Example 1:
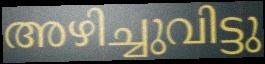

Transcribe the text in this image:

അഴിച്ചുവിട്ടു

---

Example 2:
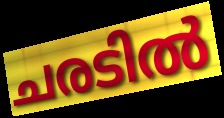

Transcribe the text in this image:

ചരടിൽ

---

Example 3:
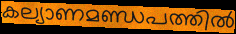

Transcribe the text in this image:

കല്യാണമണ്ഡപത്തിൽ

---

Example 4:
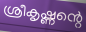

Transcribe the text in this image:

ശ്രീകൃഷ്ണന്റെ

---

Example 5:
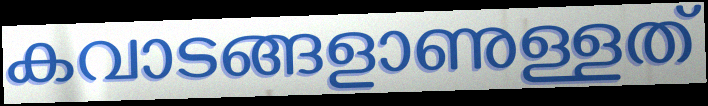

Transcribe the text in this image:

കവാടങ്ങളാണുള്ളത്